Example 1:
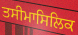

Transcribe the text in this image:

ਤਸੀਮਾਸਿਲਿਕ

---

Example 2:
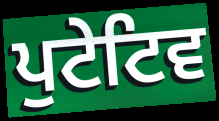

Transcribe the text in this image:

ਪੁਟੇਟਿਵ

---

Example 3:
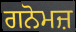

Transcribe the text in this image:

ਗਨੋਮਜ਼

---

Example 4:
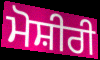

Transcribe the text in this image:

ਮੋਸ਼ੀਰੀ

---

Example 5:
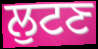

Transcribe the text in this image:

ਲੁਟਣ